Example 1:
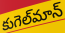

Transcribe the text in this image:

కుగెల్‌మాన్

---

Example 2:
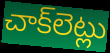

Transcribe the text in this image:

చాక్‌లెట్లు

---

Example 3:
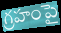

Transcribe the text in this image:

గ్రహంపై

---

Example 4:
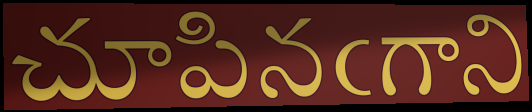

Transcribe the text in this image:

చూపినఁగాని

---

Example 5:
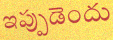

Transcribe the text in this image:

ఇప్పుడెందు